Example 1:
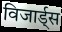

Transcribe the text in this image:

विजार्ड्स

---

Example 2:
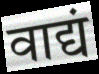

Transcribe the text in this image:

वाद्यं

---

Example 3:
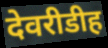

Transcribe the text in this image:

देवरीडीह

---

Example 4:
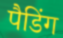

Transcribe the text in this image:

पैडिंग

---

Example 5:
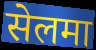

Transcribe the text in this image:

सेलमा